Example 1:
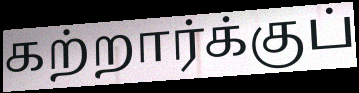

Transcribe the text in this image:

கற்றார்க்குப்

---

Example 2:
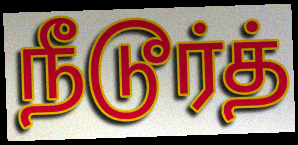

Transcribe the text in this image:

நீடூர்த்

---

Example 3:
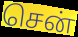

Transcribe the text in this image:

சென்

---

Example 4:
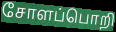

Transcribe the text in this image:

சோளப்பொறி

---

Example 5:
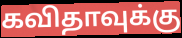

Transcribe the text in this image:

கவிதாவுக்கு